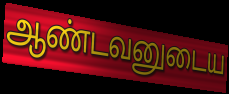
ஆண்டவனுடைய